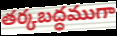
తర్కబద్ధముగా